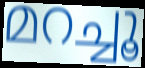
മറച്ചൂ